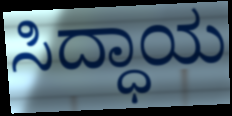
ಸಿದ್ಧಾಯ